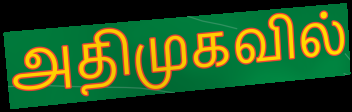
அதிமுகவில்